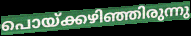
പൊയ്ക്കഴിഞ്ഞിരുന്നു